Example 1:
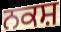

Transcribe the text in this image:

ਨਕਸ਼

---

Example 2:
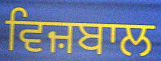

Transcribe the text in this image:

ਵਿਜ਼ਬਾਲ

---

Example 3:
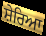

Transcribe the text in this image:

ਸ਼ੇਰਿਆ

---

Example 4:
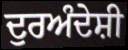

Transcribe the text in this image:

ਦੁਰਅੰਦੇਸ਼ੀ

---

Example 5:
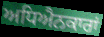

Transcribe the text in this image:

ਅਧਿਐਨਕਾਰਾਂ